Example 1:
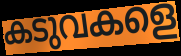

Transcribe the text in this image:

കടുവകളെ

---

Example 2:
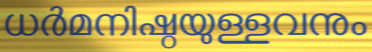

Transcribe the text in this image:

ധർമനിഷ്ഠയുള്ളവനും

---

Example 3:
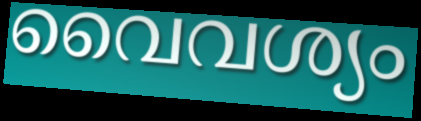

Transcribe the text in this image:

വൈവശ്യം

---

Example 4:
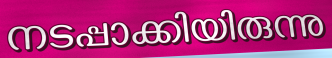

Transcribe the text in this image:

നടപ്പാക്കിയിരുന്നു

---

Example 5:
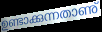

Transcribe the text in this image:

ഉണ്ടാക്കുന്നതാണു്